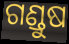
ଗଣ୍ଡୁଷ